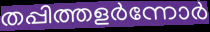
തപ്പിത്തളർന്നോർ